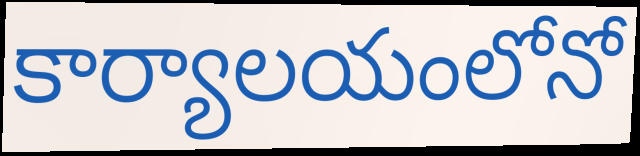
కార్యాలయంలోనో